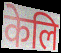
केलि